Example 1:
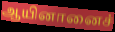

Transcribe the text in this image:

ஆயினானைச்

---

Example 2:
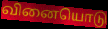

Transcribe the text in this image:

வினையொடு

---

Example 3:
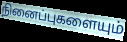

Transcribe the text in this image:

நினைப்புகளையும்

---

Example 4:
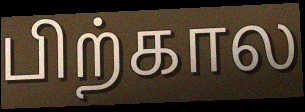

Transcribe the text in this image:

பிற்கால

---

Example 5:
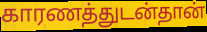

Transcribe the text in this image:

காரணத்துடன்தான்